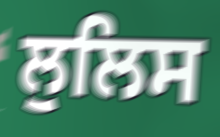
ਲੁਲਿਸ